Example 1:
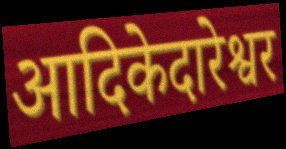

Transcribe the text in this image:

आदिकेदारेश्वर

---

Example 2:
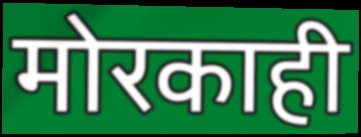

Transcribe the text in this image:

मोरकाही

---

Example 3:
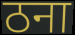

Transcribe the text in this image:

ठना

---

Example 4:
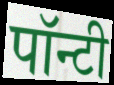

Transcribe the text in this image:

पॉन्टी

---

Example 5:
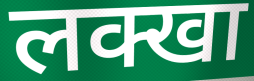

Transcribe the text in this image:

लक्खा